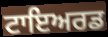
ਟਾਇਅਰਡ